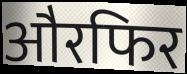
औरफिर